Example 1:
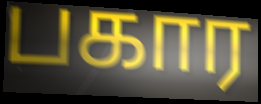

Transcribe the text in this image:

பகார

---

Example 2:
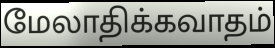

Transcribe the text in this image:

மேலாதிக்கவாதம்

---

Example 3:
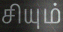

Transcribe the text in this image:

சியும்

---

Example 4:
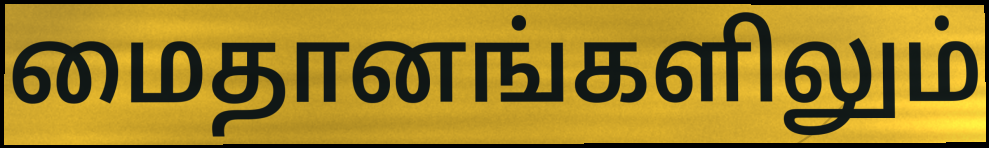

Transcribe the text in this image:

மைதானங்களிலும்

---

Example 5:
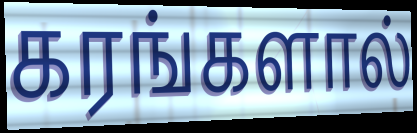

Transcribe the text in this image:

கரங்களால்